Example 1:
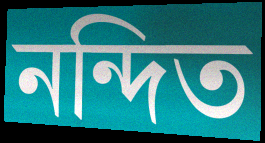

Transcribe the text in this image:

নন্দিত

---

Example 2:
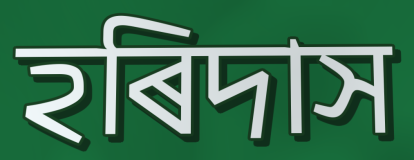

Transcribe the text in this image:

হৰিদাস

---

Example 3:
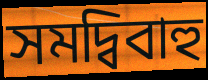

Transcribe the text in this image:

সমদ্বিবাহু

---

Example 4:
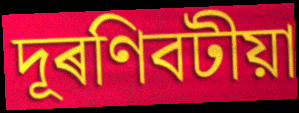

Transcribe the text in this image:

দূৰণিবটীয়া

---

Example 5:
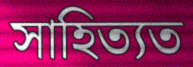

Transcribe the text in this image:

সাহিত্যত